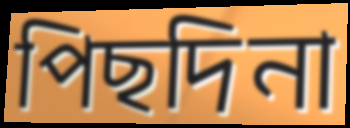
পিছদিনা